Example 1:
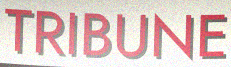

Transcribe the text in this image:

TRIBUNE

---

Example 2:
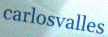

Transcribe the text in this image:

carlosvalles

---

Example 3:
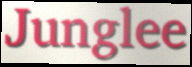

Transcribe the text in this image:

Junglee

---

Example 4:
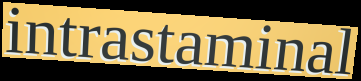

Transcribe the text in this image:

intrastaminal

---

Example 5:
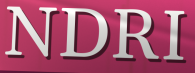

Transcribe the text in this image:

NDRI